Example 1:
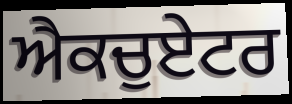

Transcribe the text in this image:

ਐਕਚੁਏਟਰ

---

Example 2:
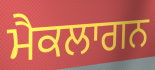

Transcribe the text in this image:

ਮੈਕਲਾਗਨ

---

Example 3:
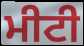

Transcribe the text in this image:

ਮੀਟੀ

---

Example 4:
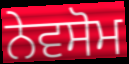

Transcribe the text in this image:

ਨੇਵਸੋਮ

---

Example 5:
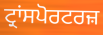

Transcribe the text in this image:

ਟ੍ਰਾਂਸਪੋਰਟਰਜ਼